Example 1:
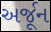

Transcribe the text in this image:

અર્જૂન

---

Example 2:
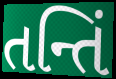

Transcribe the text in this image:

તન્તિં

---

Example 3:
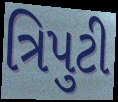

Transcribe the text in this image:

ત્રિપુટી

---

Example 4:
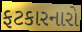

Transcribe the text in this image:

ફટકારનારો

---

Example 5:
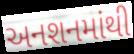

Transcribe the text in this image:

અનશનમાંથી